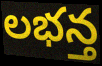
లభన్త